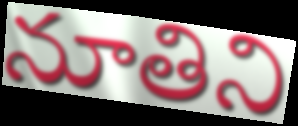
నూతిని